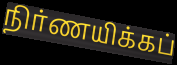
நிர்ணயிக்கப்